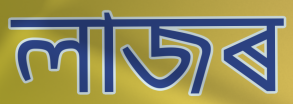
লাজৰ